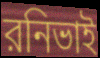
রনিভাই